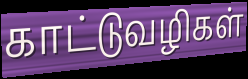
காட்டுவழிகள்